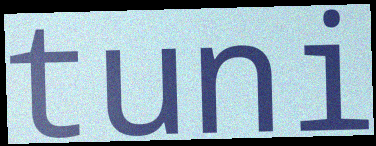
tuni